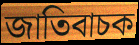
জাতিবাচক